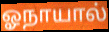
ஓநாயால்